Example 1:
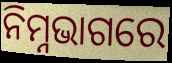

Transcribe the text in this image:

ନିମ୍ନଭାଗରେ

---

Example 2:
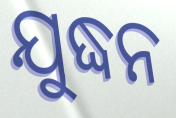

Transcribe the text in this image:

ଯୁଦ୍ଧନ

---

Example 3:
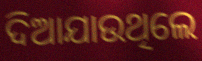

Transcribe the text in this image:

ଦିଆଯାଉଥିଲେ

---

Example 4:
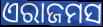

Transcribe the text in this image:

ଏରାଜମସ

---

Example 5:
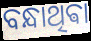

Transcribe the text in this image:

ବନ୍ଧାଥିଵା